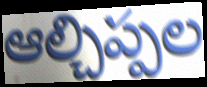
ఆల్చిప్పల